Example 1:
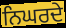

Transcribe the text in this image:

ਨਿਘਰਦੇ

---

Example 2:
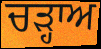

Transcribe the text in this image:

ਚੜ੍ਹਾਅ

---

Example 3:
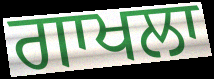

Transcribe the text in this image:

ਗਾਖਲਾ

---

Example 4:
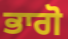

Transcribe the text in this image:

ਭਾਗੋ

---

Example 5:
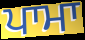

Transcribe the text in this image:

ਪਾਮਾ